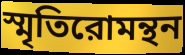
স্মৃতিরোমন্থন